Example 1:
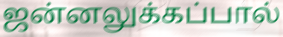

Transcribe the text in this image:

ஜன்னலுக்கப்பால்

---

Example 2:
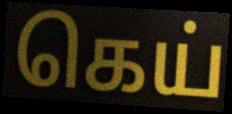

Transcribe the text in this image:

கெய்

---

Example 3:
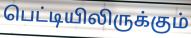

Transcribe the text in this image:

பெட்டியிலிருக்கும்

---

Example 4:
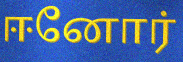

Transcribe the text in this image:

ஈனோர்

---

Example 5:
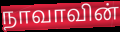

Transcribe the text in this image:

நாவாவின்